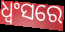
ଧ୍ଵଂସରେ